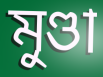
মুণ্ডা